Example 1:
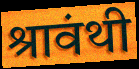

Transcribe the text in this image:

श्रावंथी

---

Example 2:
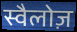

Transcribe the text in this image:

स्वैलोज़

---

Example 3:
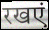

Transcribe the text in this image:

रखएं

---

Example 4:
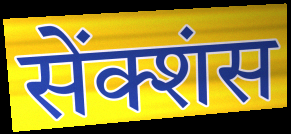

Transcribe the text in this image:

सेंक्शंस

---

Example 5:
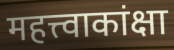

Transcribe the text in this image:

महत्त्वाकांक्षा